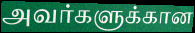
அவர்களுக்கான